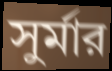
সুর্মার